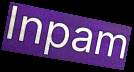
Inpam